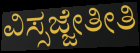
ವಿಸ್ಸಜ್ಜೇತೀತಿ